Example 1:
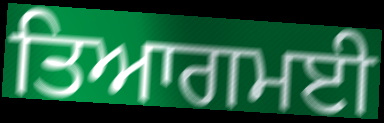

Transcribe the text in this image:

ਤਿਆਗਮਈ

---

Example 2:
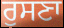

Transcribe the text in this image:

ਰੁਸਣਾ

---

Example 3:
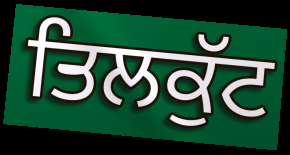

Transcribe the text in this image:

ਤਿਲਕੁੱਟ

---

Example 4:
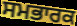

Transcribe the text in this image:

ਸਮਭਾਰਕ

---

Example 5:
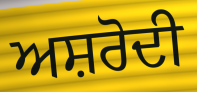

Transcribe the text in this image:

ਅਸ਼ਰੋਦੀ